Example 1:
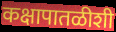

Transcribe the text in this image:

कक्षापातळीशी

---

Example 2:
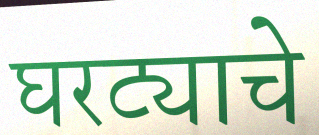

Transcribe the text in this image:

घरट्याचे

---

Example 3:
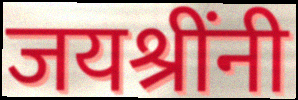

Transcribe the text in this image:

जयश्रींनी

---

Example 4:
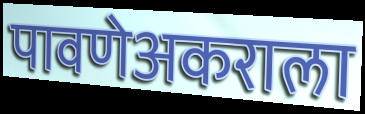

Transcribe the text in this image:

पावणेअकराला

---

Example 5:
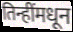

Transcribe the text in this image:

तिन्हींमधून